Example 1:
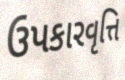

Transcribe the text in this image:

ઉપકારવૃત્તિ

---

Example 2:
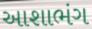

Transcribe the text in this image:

આશાભંગ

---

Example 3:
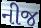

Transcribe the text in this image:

નીજ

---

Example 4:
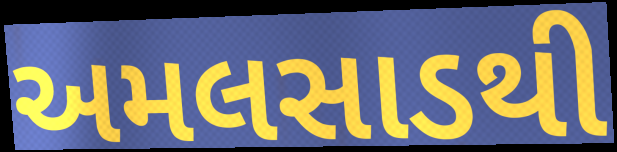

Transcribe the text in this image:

અમલસાડથી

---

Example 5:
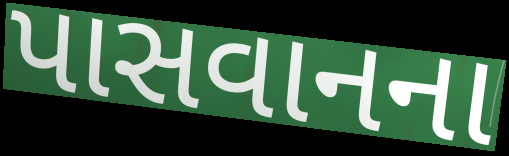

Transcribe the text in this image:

પાસવાનના